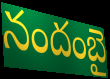
నందంబై